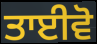
ਤਾਈਵੋ